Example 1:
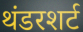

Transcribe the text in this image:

थंडरशर्ट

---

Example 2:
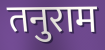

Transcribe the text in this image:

तनुराम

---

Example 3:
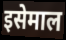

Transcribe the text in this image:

इसेमाल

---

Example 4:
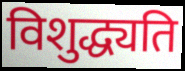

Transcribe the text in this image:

विशुद्ध्यति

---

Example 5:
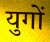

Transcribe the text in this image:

युगों